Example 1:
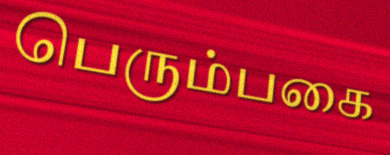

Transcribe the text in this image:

பெரும்பகை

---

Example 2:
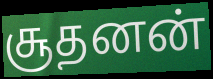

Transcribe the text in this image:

சூதனன்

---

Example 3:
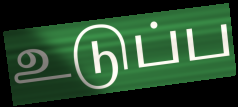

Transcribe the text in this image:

உடுப்ப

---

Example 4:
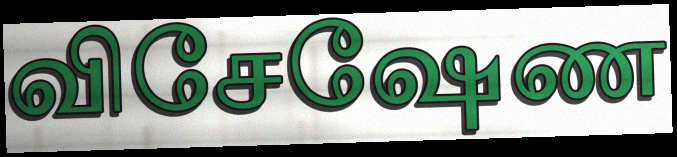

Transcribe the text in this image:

விசேஷேண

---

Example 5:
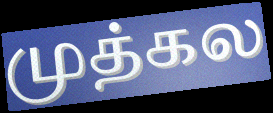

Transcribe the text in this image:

முத்கல